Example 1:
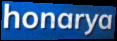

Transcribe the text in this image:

honarya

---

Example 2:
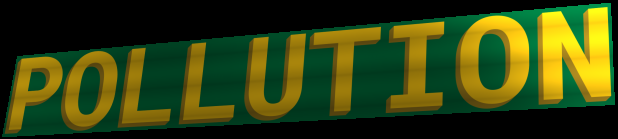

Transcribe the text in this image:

POLLUTION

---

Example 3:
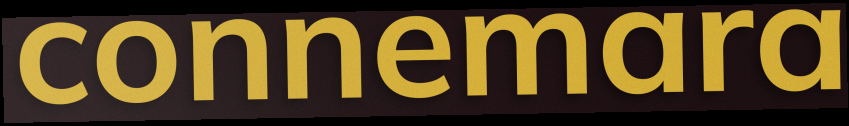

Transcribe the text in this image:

connemara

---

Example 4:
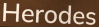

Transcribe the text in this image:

Herodes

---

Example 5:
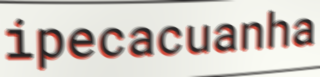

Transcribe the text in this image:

ipecacuanha